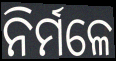
ନିର୍ମଳେ